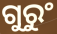
ଗୁରୁଂ